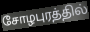
சோழபுரத்தில்